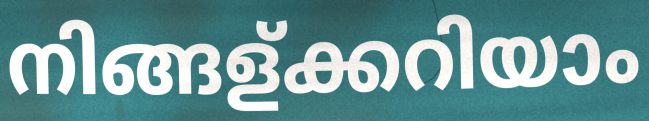
നിങ്ങള്ക്കറിയാം